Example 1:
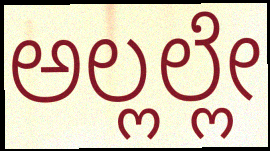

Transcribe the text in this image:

ಅಲ್ಲಲ್ಲೇ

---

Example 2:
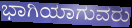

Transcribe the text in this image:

ಭಾಗಿಯಾಗುವರು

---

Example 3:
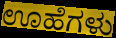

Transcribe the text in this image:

ಊಹೆಗಳು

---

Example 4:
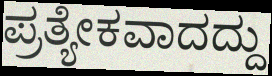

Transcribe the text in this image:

ಪ್ರತ್ಯೇಕವಾದದ್ದು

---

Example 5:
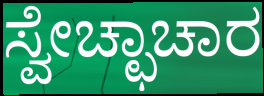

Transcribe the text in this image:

ಸ್ವೇಚ್ಛಾಚಾರ